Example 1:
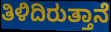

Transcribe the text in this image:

ತಿಳಿದಿರುತ್ತಾನೆ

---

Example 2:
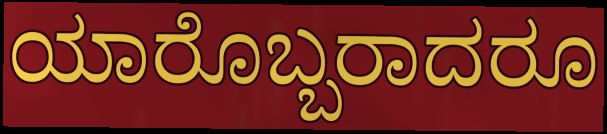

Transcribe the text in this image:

ಯಾರೊಬ್ಬರಾದರೂ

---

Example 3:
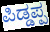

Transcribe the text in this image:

ಪಿಡ್ಡಪ್ಪ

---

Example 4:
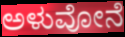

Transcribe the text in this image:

ಅಳುವೋನೆ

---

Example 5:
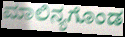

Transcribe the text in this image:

ಮಾಲಿನ್ಯಗೊಂಡ